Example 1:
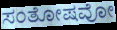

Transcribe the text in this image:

ಸಂತೋಷವೋ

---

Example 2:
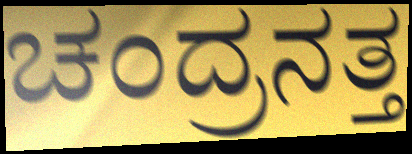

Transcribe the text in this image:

ಚಂದ್ರನತ್ತ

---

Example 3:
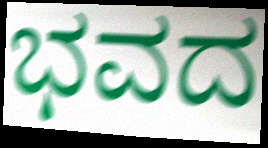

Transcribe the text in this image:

ಭವದ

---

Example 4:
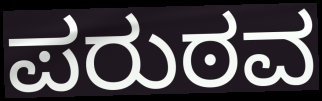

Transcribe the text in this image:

ಪರುಠವ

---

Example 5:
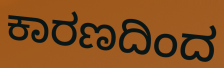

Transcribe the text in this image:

ಕಾರಣದಿಂದ